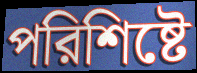
পরিশিষ্টে